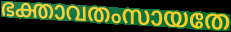
ഭക്താവതംസായതേ